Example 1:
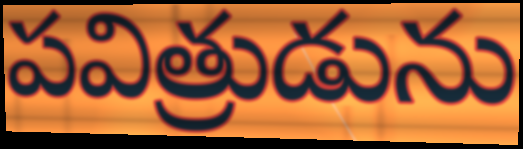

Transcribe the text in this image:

పవిత్రుడును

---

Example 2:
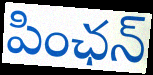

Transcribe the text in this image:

పింఛన్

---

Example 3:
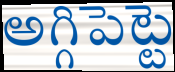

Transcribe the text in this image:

అగ్గిపెట్టె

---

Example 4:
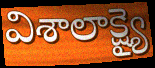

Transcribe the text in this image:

విశాలాక్ష్యై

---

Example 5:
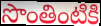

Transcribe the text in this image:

సొంతింటికి